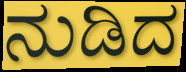
ನುಡಿದ